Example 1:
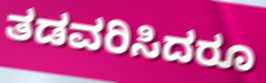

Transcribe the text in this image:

ತಡವರಿಸಿದರೂ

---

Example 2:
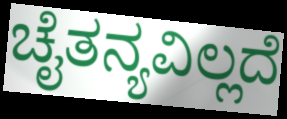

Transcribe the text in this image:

ಚೈತನ್ಯವಿಲ್ಲದೆ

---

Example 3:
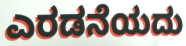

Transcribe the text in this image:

ಎರಡನೆಯದು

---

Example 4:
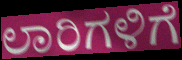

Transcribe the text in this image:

ಲಾರಿಗಳಿಗೆ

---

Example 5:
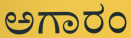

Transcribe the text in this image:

ಅಗಾರಂ